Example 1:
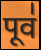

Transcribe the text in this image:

पूव॑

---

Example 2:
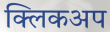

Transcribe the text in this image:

क्लिकअप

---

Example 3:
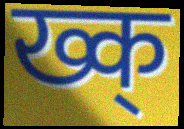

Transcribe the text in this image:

ख्क्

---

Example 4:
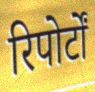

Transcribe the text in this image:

रिपोर्टों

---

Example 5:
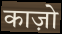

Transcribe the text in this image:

काज़ो